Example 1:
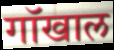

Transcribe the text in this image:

गॉखाल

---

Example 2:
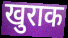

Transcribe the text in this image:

खुराक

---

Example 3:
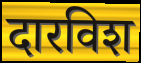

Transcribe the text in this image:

दारविश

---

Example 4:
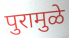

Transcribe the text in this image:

पुरामुळे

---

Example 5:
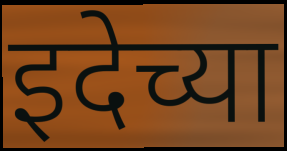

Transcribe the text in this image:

इदेच्या